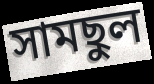
সামছুল